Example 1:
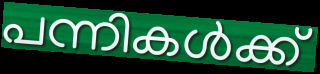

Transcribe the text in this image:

പന്നികൾക്ക്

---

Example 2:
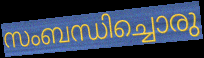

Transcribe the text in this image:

സംബന്ധിച്ചൊരു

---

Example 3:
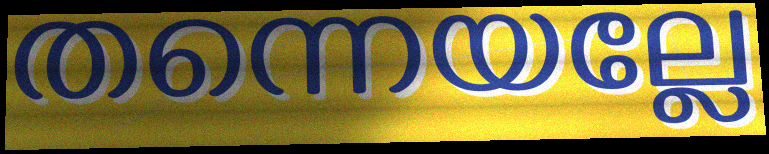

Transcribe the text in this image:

തന്നെയല്ലേ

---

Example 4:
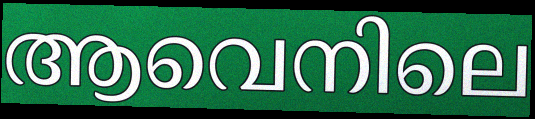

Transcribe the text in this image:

ആവെനിലെ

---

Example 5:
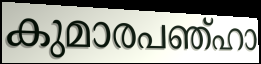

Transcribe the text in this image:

കുമാരപഞ്ഹാ